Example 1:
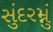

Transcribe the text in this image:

સુંદરમ્નું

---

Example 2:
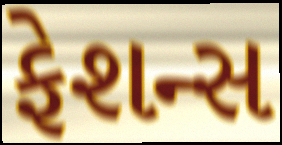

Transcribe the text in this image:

ફેશન્સ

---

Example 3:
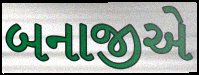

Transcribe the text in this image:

બનાજીએ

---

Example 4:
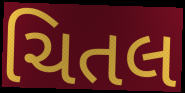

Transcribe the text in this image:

ચિતલ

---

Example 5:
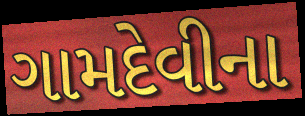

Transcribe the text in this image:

ગામદેવીના